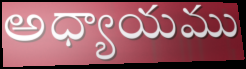
అధ్యాయము